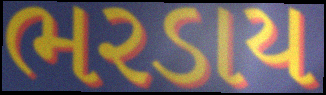
ભરડાય